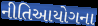
નીતિઆયોગના